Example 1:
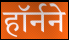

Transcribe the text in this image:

हॉर्नने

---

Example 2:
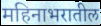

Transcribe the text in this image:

महिनाभरातील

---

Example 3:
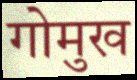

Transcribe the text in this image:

गोमुख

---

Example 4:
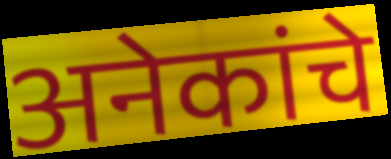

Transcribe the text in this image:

अनेकांचे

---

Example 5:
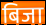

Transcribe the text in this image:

बिजा